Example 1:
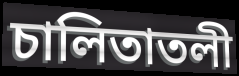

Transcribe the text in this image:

চালিতাতলী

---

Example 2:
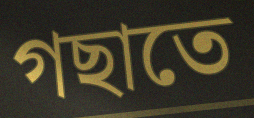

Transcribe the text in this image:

গছাতে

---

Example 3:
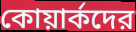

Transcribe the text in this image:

কোয়ার্কদের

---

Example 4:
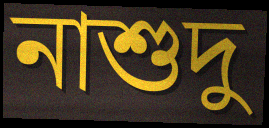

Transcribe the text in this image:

নাশুদু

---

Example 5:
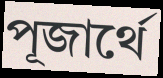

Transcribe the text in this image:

পূজার্থে